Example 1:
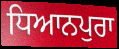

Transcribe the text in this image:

ਧਿਆਨਪੁਰਾ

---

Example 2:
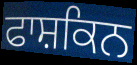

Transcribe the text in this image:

ਫਾਸ਼ਕਿਨ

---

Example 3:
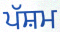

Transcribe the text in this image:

ਪੱਸ਼ਮ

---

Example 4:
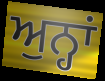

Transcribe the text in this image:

ਅੁਨ੍ਹਾਂ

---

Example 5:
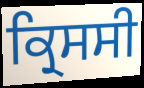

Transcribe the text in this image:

ਕ੍ਰਿਸਸੀ